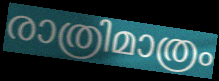
രാത്രിമാത്രം